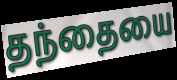
தந்தையை